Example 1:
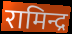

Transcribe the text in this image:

रामिन्द्र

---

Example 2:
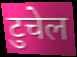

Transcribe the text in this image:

टुचेल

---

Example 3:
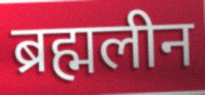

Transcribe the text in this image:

ब्रह्मलीन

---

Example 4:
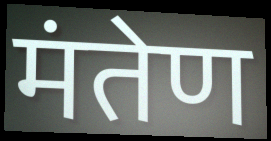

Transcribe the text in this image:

मंतेण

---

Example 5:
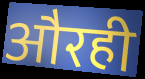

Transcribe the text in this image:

औरही